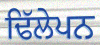
ਢਿੱਲੇਪਨ